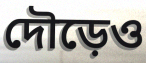
দৌড়েও